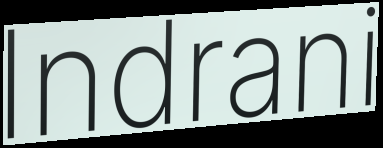
Indrani